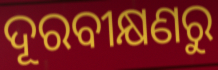
ଦୂରବୀକ୍ଷଣରୁ